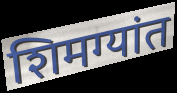
शिमग्यांत